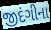
જીદંગીના